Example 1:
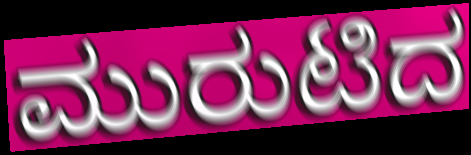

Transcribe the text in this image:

ಮುರುಟಿದ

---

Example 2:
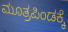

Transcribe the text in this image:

ಮೂತ್ರಪಿಂಡಕ್ಕೆ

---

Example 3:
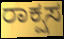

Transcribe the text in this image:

ರಾಕ್ಷಸ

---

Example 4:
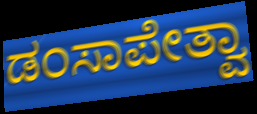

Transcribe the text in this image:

ಡಂಸಾಪೇತ್ವಾ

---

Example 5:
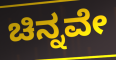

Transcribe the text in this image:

ಚಿನ್ನವೇ